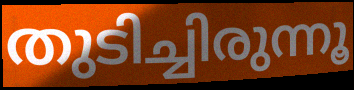
തുടിച്ചിരുന്നൂ